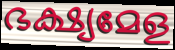
ഭക്ഷ്യമേള